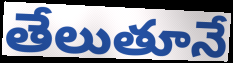
తేలుతూనే